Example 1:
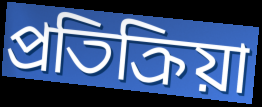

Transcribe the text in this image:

প্ৰতিক্ৰিয়া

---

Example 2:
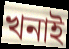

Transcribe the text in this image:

খনাই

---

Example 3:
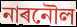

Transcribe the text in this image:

নাৰনৌল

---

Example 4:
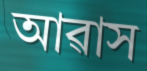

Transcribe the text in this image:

আৱাস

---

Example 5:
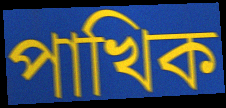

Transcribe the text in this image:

পাখিক